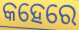
କହେରେ